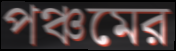
পঞ্চমের